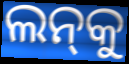
ଲନ୍‌କୁ